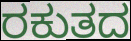
ರಕುತದ